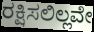
ರಕ್ಷಿಸಲಿಲ್ಲವೇ